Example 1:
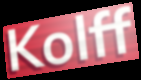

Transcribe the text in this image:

Kolff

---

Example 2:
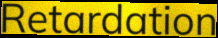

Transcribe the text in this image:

Retardation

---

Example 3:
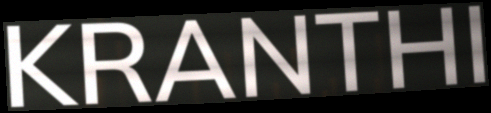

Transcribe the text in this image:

KRANTHI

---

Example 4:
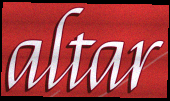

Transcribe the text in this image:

altar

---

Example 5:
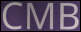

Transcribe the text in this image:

CMB